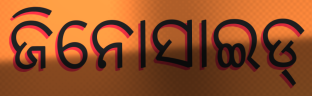
ଜିନୋସାଇଡ୍